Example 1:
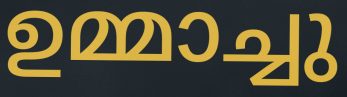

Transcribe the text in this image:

ഉമ്മാച്ചു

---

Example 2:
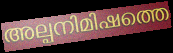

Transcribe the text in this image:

അല്പനിമിഷത്തെ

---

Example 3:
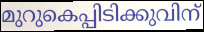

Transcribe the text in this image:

മുറുകെപ്പിടിക്കുവിന്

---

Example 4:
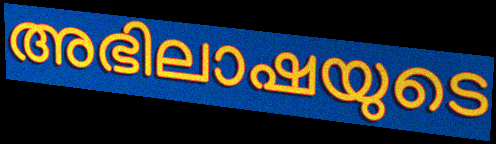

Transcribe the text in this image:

അഭിലാഷയുടെ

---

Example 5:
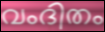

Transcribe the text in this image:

വംദിതം